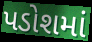
પડોશમાં